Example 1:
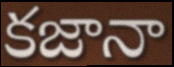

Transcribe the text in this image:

కజానా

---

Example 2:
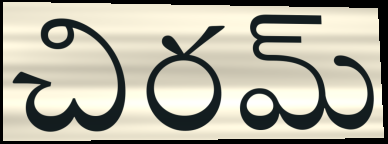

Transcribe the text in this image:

చిరమ్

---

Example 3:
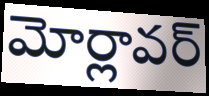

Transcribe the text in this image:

మోర్లావర్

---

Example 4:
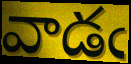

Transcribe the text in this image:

వాడఁ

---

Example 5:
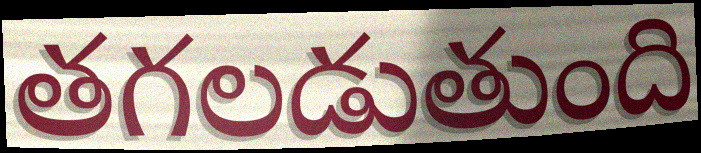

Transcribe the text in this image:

తగలడుతుంది